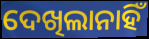
ଦେଖିଲାନାହିଁ